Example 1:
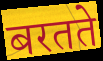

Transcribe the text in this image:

बरतते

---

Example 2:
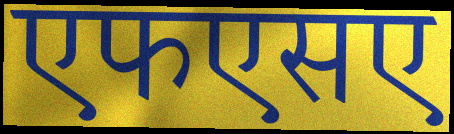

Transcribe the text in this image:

एफएसए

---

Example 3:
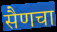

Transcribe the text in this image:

सैणचा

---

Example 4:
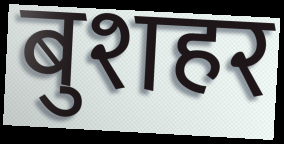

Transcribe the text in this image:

बुशहर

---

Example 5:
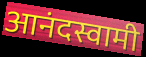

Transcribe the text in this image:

आनंदस्वामी